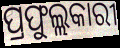
ପ୍ରଫୁଲ୍ଲକାରୀ